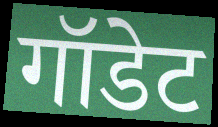
गॉडेट